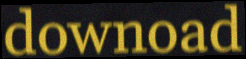
downoad